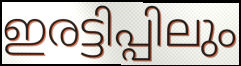
ഇരട്ടിപ്പിലും